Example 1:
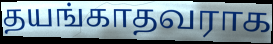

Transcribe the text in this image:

தயங்காதவராக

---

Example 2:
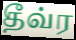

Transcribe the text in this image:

தீவ்ர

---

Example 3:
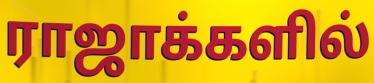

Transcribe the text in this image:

ராஜாக்களில்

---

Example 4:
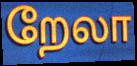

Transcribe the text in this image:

றேலா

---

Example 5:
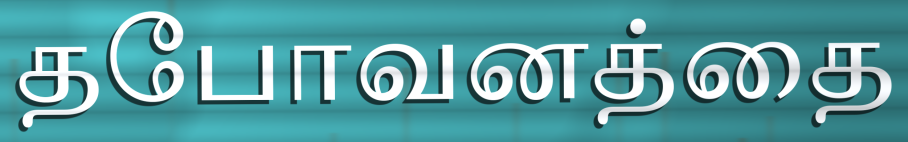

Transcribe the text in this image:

தபோவனத்தை